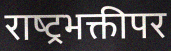
राष्ट्रभक्तीपर